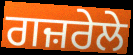
ਗਜ਼ਰੇਲੇ